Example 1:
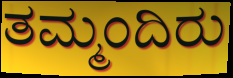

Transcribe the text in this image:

ತಮ್ಮಂದಿರು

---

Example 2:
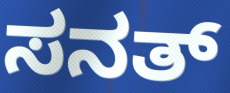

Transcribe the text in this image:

ಸನತ್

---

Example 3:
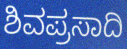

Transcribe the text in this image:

ಶಿವಪ್ರಸಾದಿ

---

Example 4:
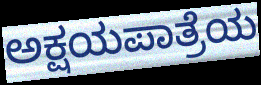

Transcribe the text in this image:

ಅಕ್ಷಯಪಾತ್ರೆಯ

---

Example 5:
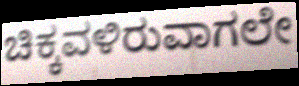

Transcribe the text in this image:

ಚಿಕ್ಕವಳಿರುವಾಗಲೇ